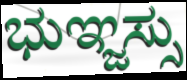
ಭುಞ್ಜಸ್ಸು